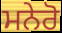
ਮਨੇਰੋ